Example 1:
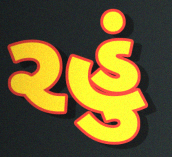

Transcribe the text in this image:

રહું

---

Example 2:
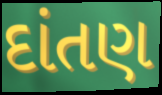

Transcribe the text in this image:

દાંતણ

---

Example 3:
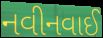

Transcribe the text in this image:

નવીનવાઈ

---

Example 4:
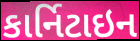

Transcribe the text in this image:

કાર્નિટાઇન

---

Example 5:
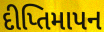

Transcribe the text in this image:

દીપ્તિમાપન